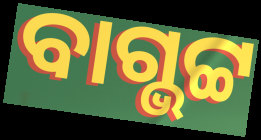
ବାଗ୍ଭଟ୍ଟ